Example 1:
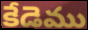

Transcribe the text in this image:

కేడెము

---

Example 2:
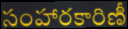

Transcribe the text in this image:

సంహారకారిణీ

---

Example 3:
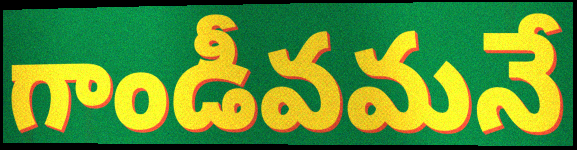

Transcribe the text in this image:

గాండీవమనే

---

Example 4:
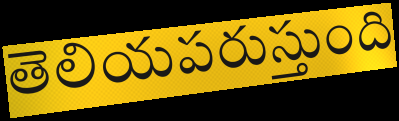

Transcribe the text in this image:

తెలియపరుస్తుంది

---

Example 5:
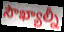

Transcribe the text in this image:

సౌఖ్యాల్నీ